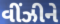
વીંઝીને